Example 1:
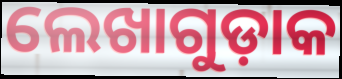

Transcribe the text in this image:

ଲେଖାଗୁଡ଼ାକ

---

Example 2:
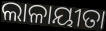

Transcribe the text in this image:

ଲାଳାୟୀତା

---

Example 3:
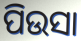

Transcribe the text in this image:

ପିଉସା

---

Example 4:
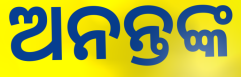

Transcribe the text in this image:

ଅନନ୍ତଙ୍କ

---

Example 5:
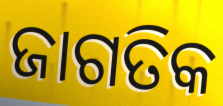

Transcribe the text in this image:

ଜାଗତିକ